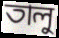
তালু